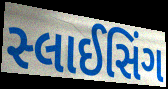
સ્લાઈસિંગ